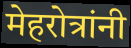
मेहरोत्रांनी